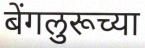
बेंगलुरूच्या